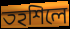
তহশিলে